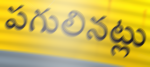
పగులినట్లు